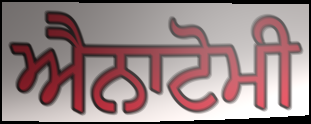
ਐਨਾਟੋਮੀ